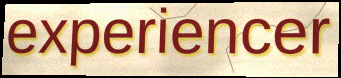
experiencer